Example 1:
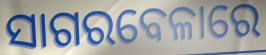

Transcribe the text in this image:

ସାଗରବେଳାରେ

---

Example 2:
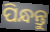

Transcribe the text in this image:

ପିନ୍ଧନ୍ତୁ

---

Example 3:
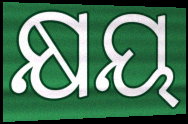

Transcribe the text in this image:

କ୍ଷୟ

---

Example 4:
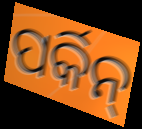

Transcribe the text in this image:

ପର୍କିନ୍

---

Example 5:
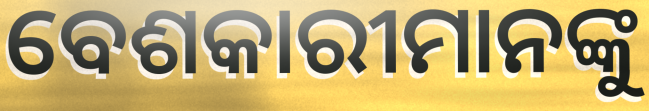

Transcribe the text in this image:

ବେଶକାରୀମାନଙ୍କୁ